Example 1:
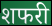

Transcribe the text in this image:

शफरी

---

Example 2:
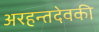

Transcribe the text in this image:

अरहन्तदेवकी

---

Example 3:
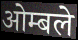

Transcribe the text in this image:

ओम्बले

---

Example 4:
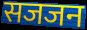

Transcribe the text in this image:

सजजन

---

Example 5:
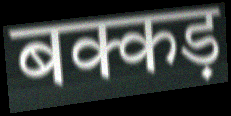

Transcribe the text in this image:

बक्कड़